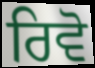
ਰਿਵੋ